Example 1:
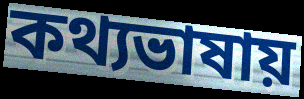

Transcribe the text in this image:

কথ্যভাষায়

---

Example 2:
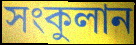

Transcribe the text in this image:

সংকুলান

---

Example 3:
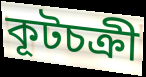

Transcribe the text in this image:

কূটচক্রী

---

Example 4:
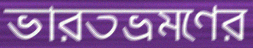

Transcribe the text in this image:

ভারতভ্রমণের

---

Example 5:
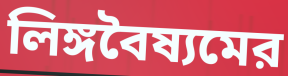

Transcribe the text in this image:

লিঙ্গবৈষ্যমের